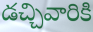
డచ్చివారికి